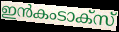
ഇൻകംടാക്സ്